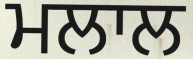
ਮਲਾਲ